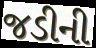
જડીની